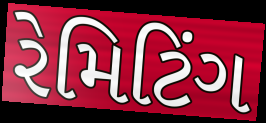
રેમિટિંગ